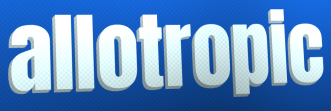
allotropic